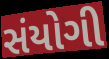
સંયોગી